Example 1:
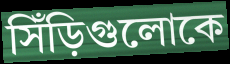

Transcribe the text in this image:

সিঁড়িগুলোকে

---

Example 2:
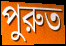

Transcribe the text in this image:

পুরুত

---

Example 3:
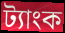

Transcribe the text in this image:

ট্যাংক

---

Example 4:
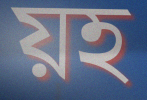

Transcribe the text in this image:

য়হ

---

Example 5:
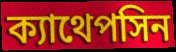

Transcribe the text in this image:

ক্যাথেপসিন